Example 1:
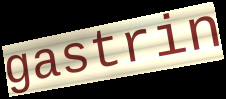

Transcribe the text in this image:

gastrin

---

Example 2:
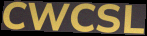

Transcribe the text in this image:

CWCSL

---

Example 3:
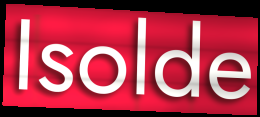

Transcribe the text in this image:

Isolde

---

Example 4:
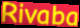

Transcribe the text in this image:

Rivaba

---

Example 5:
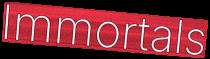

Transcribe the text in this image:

Immortals